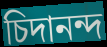
চিদানন্দ